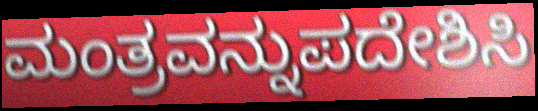
ಮಂತ್ರವನ್ನುಪದೇಶಿಸಿ